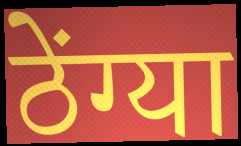
ठेंग्या